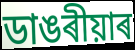
ডাঙৰীয়াৰ